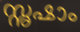
സ്നുഷാം